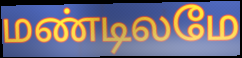
மண்டிலமே